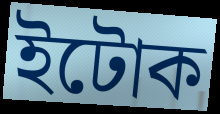
ইটোক